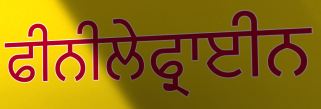
ਫੀਨੀਲੇਫ੍ਰਾਈਨ